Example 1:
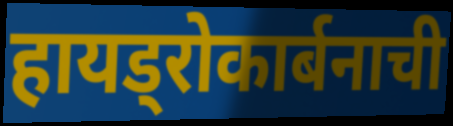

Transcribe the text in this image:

हायड्रोकार्बनाची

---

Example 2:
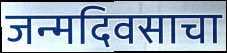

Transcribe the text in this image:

जन्मदिवसाचा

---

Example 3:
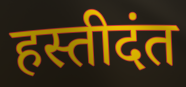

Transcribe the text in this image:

हस्तीदंत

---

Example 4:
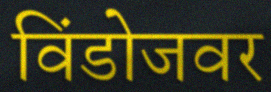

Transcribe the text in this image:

विंडोजवर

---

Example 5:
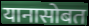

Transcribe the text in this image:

यानासोबत